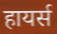
हायर्स